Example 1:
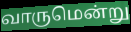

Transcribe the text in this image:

வாருமென்று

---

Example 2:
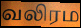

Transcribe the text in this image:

வலிரம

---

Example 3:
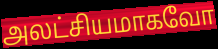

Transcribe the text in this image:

அலட்சியமாகவோ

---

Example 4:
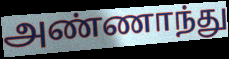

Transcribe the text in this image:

அண்ணாந்து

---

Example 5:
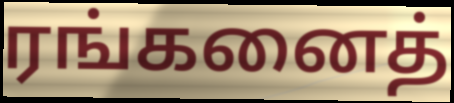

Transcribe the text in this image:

ரங்கனைத்